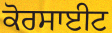
ਕੋਰਸਾਈਟ